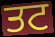
ਤਟ